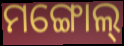
ମଙ୍ଗୋଲ୍